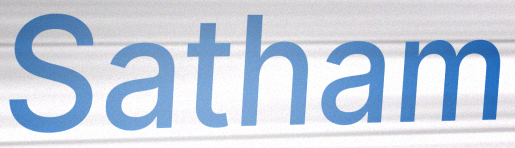
Satham